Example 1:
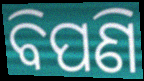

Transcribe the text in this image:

ବିପଣି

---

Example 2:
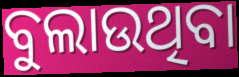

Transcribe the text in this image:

ବୁଲାଉଥିବା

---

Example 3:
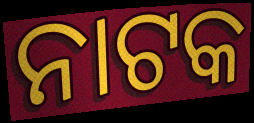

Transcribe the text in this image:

ନାଟକ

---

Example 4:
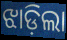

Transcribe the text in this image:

ଝାଡ଼ିଲା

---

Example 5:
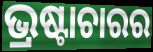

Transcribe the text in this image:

ଭ୍ରଷ୍ଟାଚାରର